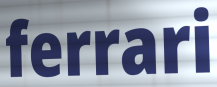
ferrari